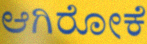
ಆಗಿರೋಕೆ